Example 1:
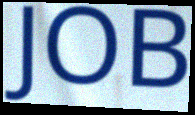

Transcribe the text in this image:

JOB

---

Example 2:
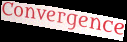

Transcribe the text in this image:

Convergence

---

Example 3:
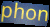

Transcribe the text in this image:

phon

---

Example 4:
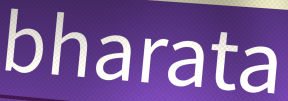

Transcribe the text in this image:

bharata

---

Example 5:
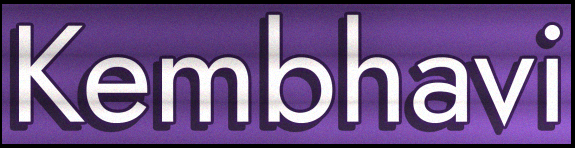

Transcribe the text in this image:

Kembhavi